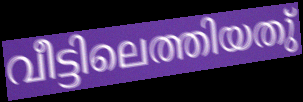
വീട്ടിലെത്തിയതു്